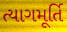
ત્યાગમૂર્તિ